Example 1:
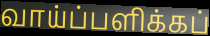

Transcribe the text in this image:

வாய்ப்பளிக்கப்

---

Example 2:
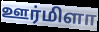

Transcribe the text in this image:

ஊர்மிளா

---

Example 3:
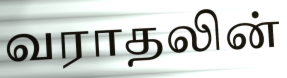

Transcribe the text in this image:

வராதலின்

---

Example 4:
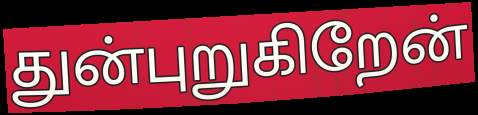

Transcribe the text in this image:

துன்புறுகிறேன்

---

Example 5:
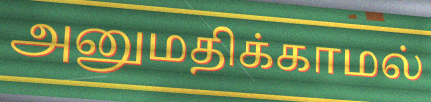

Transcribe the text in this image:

அனுமதிக்காமல்